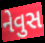
નેવુસ